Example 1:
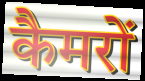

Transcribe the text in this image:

कैमरों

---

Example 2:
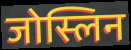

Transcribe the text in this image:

जोस्लिन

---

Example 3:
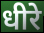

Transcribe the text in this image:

धीरे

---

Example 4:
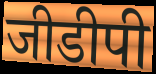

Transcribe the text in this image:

जीडीपी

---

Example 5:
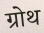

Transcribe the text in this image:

ग्रोथ